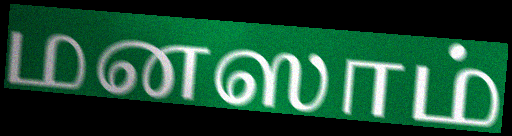
மனஸாம்